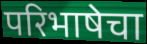
परिभाषेचा